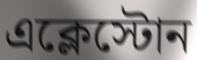
এক্লেস্টোন